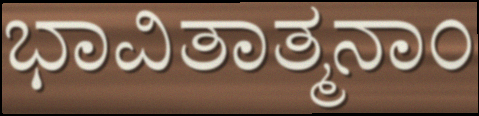
ಭಾವಿತಾತ್ಮನಾಂ